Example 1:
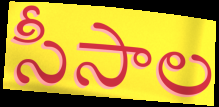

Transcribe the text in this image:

సీసాల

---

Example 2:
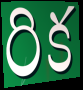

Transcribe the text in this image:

రిక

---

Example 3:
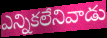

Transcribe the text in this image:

ఎన్నికలేనివాడు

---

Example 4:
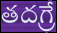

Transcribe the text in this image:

తదగ్రే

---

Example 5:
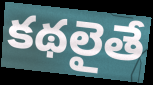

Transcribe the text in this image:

కథలైతే